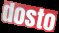
dosto